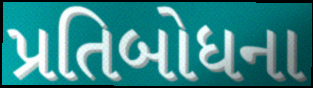
પ્રતિબોધના